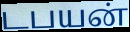
டபயன்